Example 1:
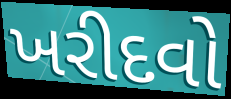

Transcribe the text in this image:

ખરીદવો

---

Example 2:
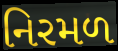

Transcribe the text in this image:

નિરમળ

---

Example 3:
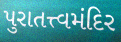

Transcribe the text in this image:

પુરાતત્ત્વમંદિર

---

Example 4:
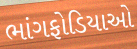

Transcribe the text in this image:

ભાંગફોડિયાઓ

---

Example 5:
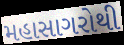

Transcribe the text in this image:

મહાસાગરોથી